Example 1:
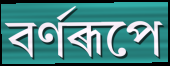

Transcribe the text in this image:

বৰ্ণৰূপে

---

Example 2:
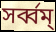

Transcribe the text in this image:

সৰ্ব্বম্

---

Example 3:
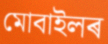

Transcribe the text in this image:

মোবাইলৰ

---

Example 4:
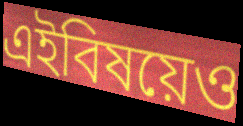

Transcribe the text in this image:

এইবিষয়েও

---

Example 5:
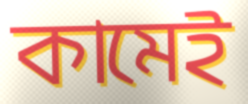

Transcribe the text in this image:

কামেই